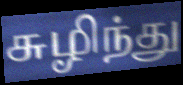
சுழிந்து